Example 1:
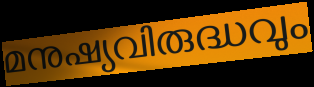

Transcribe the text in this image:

മനുഷ്യവിരുദ്ധവും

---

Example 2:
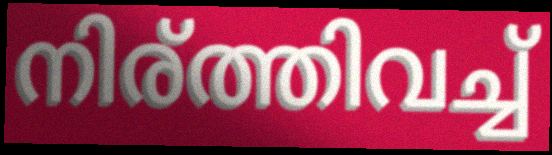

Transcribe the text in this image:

നിര്ത്തിവച്ച്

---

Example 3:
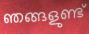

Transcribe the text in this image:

ഞങ്ങളുണ്ട്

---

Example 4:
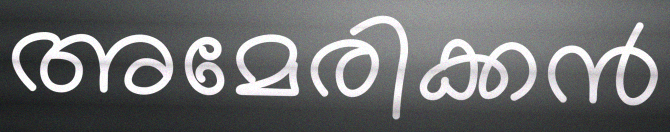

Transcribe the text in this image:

അമേരിക്കൻ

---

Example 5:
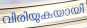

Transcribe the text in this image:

വിരിയുകയായി